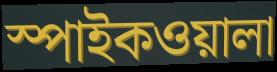
স্পাইকওয়ালা